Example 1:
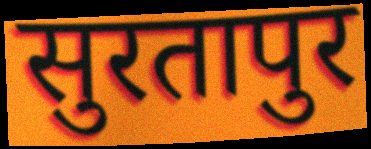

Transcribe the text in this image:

सुरतापुर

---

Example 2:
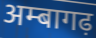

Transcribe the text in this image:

अम्बागढ़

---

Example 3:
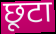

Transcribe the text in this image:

छूटा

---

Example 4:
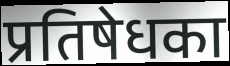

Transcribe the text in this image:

प्रतिषेधका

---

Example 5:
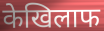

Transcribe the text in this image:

केखिलाफ